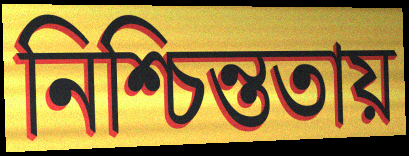
নিশ্চিন্ততায়